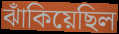
ঝাঁকিয়েছিল